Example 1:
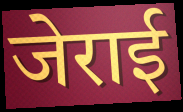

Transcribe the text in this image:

जेराई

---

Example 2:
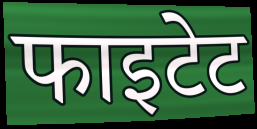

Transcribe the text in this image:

फाइटेट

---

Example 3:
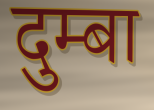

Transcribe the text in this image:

दुम्बा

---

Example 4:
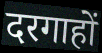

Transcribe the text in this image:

दरगाहों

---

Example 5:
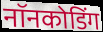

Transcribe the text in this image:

नॉनकोडिंग